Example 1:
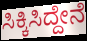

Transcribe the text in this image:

ಸಿಕ್ಕಿಸಿದ್ದೇನೆ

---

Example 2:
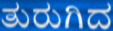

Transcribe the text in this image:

ತುರುಗಿದ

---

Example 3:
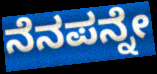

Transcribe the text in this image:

ನೆನಪನ್ನೇ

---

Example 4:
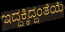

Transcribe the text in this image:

ಇದ್ದಕ್ಕಿದ್ದಂತೆಯೆ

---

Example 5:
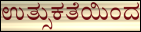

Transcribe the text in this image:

ಉತ್ಸುಕತೆಯಿಂದ